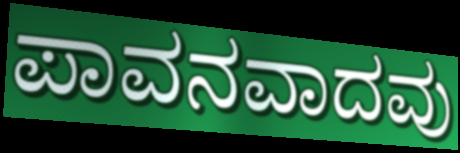
ಪಾವನವಾದವು